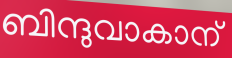
ബിന്ദുവാകാന്